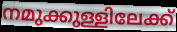
നമുക്കുള്ളിലേക്ക്